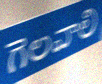
గెలవాలి